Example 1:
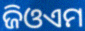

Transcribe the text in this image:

ଜିଓଏମ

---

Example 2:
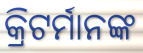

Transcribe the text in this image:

କ୍ରିଟର୍ମାନଙ୍କ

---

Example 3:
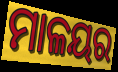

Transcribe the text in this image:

ମାଳୟର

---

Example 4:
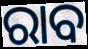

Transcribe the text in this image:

ରାବ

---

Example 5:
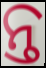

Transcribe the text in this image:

ନ୍ତ